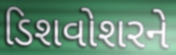
ડિશવોશરને